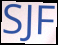
SJF